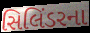
સિલિંડરના